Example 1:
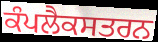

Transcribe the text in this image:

ਕੰਪਲੈਕਸਤਰਨ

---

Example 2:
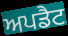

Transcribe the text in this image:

ਅਪਡੈਟ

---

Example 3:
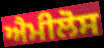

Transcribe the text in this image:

ਐਮੀਲੋਸ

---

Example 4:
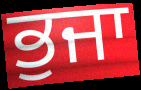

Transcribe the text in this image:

ਭੁਜਾ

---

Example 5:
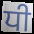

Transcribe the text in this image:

ਧੀ